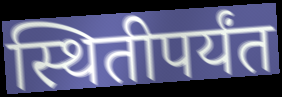
स्थितीपर्यंत